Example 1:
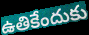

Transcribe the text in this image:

ఉతికేందుకు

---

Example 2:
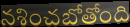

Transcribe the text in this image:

నశించబోతోంది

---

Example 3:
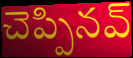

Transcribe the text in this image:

చెప్పినవ్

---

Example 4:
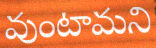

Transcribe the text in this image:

వుంటామని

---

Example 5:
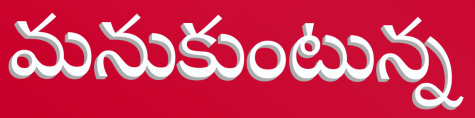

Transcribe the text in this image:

మనుకుంటున్న